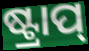
ଷ୍ଟ୍ରାପ୍